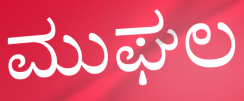
ಮುಘಲ